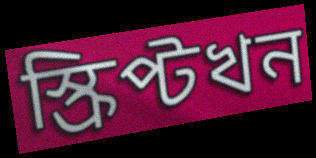
স্ক্ৰিপ্টখন